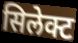
सिलेक्ट